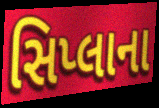
સિપ્લાના